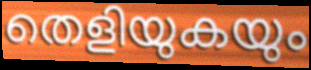
തെളിയുകയും